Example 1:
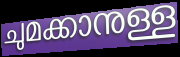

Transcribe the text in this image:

ചുമക്കാനുള്ള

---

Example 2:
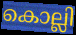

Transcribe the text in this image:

കൊല്ലി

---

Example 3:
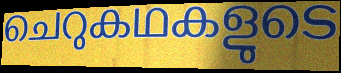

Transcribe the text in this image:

ചെറുകഥകളുടെ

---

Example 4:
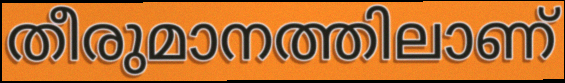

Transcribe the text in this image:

തീരുമാനത്തിലാണ്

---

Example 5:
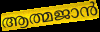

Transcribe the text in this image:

ആത്മജാൻ